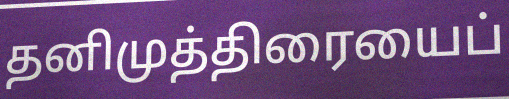
தனிமுத்திரையைப்